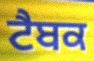
ਟੈਬਕ